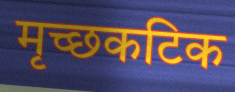
मृच्छकटिक